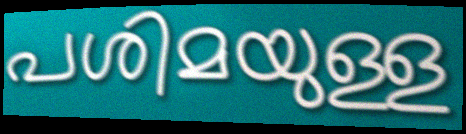
പശിമയുള്ള